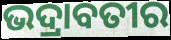
ଭଦ୍ରାବତୀର